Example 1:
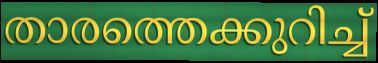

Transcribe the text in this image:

താരത്തെക്കുറിച്ച്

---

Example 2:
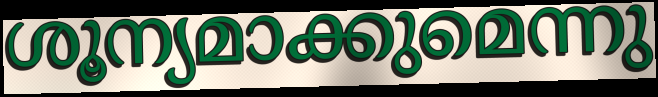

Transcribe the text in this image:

ശൂന്യമാക്കുമെന്നു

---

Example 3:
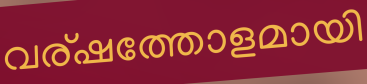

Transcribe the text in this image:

വര്ഷത്തോളമായി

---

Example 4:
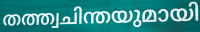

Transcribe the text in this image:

തത്ത്വചിന്തയുമായി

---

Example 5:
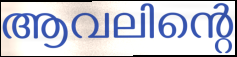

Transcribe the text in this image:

ആവലിന്റെ